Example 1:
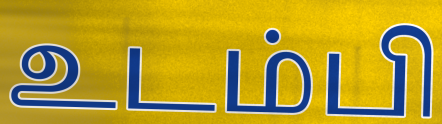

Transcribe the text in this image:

உடம்பி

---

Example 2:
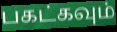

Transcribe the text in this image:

பகட்கவும்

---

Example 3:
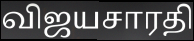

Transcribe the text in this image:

விஜயசாரதி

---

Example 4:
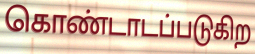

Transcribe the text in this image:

கொண்டாடப்படுகிற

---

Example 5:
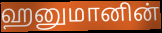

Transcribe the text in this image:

ஹனுமானின்